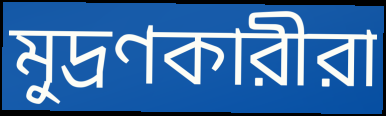
মুদ্রণকারীরা